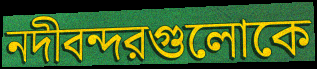
নদীবন্দরগুলোকে